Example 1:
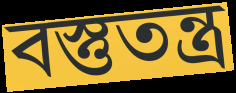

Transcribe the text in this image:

বস্তুতন্ত্র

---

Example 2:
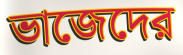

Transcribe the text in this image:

ভাজেদের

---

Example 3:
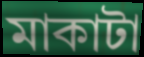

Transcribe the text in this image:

মাকাটা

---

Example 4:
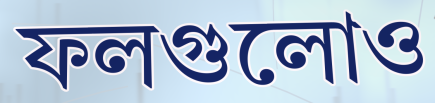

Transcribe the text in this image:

ফলগুলোও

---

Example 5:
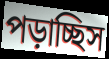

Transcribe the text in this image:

পড়াচ্ছিস